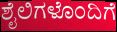
ಶೈಲಿಗಳೊಂದಿಗೆ